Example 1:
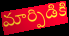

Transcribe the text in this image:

మార్పిడికి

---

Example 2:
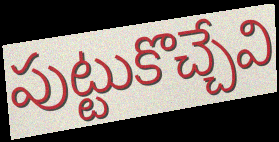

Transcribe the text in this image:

పుట్టుకొచ్చేవి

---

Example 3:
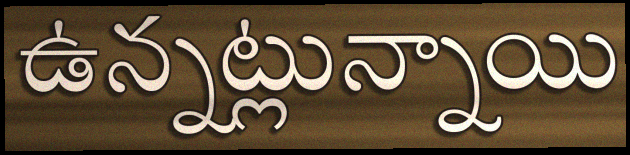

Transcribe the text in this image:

ఉన్నట్లున్నాయి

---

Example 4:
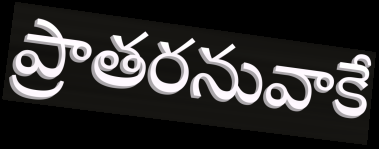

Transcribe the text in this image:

ప్రాతరనువాకే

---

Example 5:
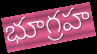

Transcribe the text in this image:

భూగ్రహ